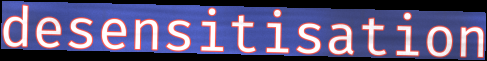
desensitisation